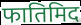
फातिमिद